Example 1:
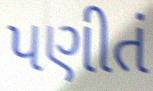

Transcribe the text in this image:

પણીતં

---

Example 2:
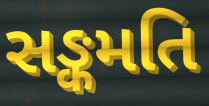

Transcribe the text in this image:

સઙ્કમતિ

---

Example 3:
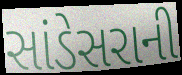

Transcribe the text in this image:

સાંડેસરાની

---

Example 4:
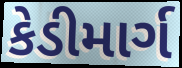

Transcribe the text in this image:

કેડીમાર્ગ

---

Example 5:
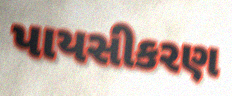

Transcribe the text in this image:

પાયસીકરણ